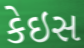
કેઇસ